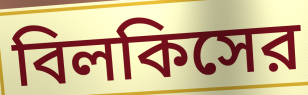
বিলকিসের